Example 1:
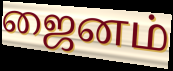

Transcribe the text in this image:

ஜைனம்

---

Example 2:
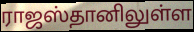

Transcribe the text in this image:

ராஜஸ்தானிலுள்ள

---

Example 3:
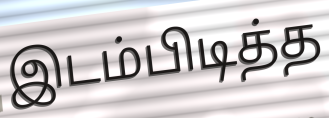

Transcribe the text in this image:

இடம்பிடித்த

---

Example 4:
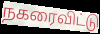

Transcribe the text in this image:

நகரைவிட்டு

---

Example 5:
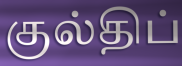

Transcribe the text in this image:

குல்திப்